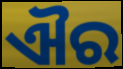
ଐର